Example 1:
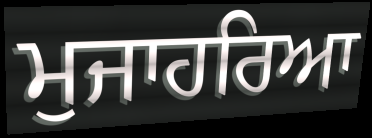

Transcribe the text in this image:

ਮੁਜਾਹਰਿਆ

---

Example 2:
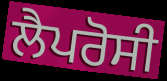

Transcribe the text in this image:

ਲੈਪਰੋਸੀ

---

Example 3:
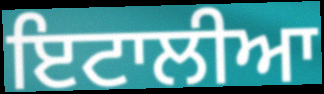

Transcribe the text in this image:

ਇਟਾਲੀਆ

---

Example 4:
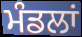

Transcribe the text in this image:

ਮੰਡਲਾਂ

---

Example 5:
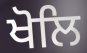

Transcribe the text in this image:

ਖੋਲਿ